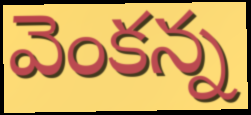
వెంకన్న